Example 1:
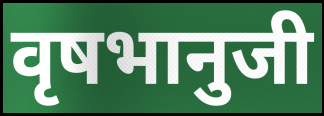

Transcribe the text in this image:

वृषभानुजी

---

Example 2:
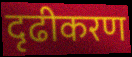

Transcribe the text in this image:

दृढीकरण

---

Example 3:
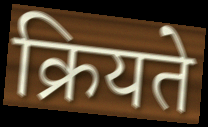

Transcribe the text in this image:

क्रियते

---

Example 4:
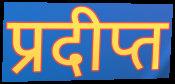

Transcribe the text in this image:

प्रदीप्त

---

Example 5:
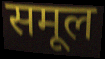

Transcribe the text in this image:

समूल